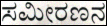
ಸಮೀರಣನ